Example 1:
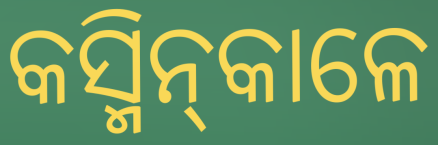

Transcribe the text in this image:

କସ୍ମିନ୍‍କାଳେ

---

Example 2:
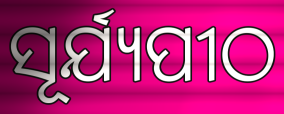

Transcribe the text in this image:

ସୂର୍ଯ୍ୟପୀଠ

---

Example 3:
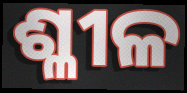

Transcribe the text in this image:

ଶ୍ଳୀଳ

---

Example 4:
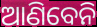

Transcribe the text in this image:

ଆଣିବେନି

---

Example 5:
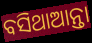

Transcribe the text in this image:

ବସିଥାଆନ୍ତା